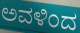
ಅವಳಿಂದ